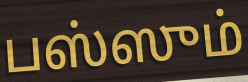
பஸ்ஸும்